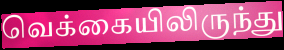
வெக்கையிலிருந்து